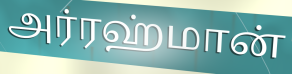
அர்ரஹ்மான்